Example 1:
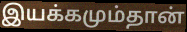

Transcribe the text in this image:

இயக்கமும்தான்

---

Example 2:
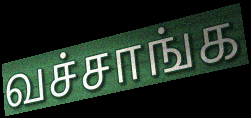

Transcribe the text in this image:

வச்சாங்க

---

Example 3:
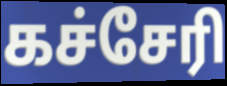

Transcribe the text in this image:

கச்சேரி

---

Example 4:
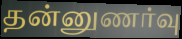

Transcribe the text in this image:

தன்னுணர்வு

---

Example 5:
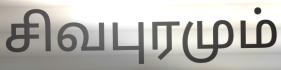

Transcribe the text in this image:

சிவபுரமும்